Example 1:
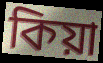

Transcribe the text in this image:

কিয়া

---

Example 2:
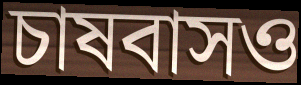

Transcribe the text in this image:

চাষবাসও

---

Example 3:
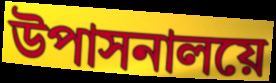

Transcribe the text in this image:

উপাসনালয়ে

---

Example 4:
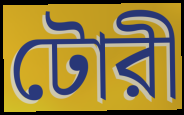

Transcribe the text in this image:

টোরী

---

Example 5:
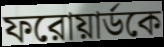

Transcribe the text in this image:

ফরোয়ার্ডকে